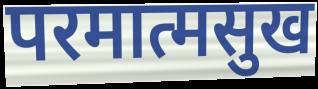
परमात्मसुख